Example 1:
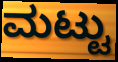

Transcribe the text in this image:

ಮಟ್ಟು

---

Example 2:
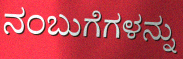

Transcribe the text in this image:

ನಂಬುಗೆಗಳನ್ನು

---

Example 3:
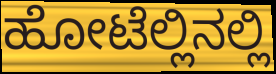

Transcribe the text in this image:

ಹೋಟೆಲ್ಲಿನಲ್ಲಿ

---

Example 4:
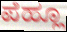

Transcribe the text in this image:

ಪೆಹ್ಲೂ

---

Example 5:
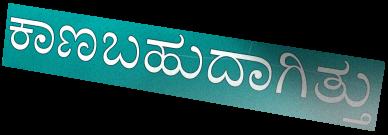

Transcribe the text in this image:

ಕಾಣಬಹುದಾಗಿತ್ತು